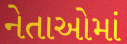
નેતાઓમાં